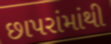
છાપરાંમાંથી